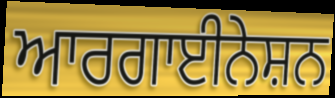
ਆਰਗਾਈਨੇਸ਼ਨ